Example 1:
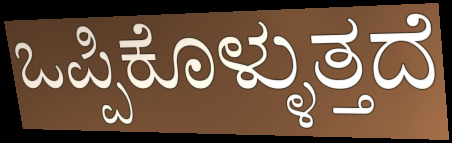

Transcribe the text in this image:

ಒಪ್ಪಿಕೊಳ್ಳುತ್ತದೆ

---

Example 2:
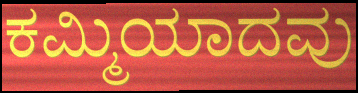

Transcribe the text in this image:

ಕಮ್ಮಿಯಾದವು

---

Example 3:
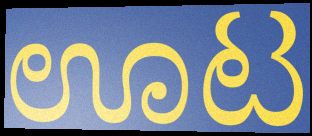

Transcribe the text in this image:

ಊಟ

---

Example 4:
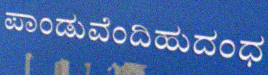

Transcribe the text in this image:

ಪಾಂಡುವೆಂದಿಹುದಂಧ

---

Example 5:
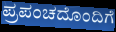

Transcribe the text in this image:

ಪ್ರಪಂಚದೊಂದಿಗೆ